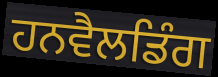
ਹਨਵੈਲਡਿੰਗ